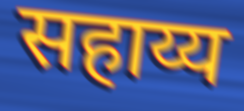
सहाय्य